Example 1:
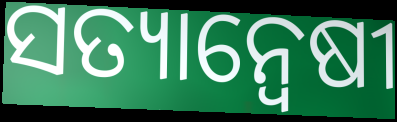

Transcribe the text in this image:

ସତ୍ୟାନ୍ଵେଷୀ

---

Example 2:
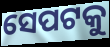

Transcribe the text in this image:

ସେପଟକୁ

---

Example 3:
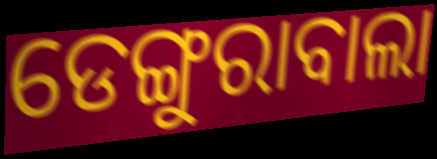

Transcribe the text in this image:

ଡେଙ୍ଗୁରାବାଲା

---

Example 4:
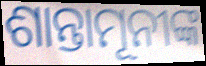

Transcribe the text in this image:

ଶାନ୍ତାମୂନୀଙ୍କ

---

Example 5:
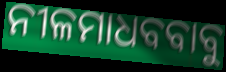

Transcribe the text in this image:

ନୀଳମାଧବବାବୁ